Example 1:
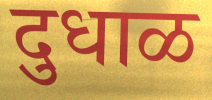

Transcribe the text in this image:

दुधाळ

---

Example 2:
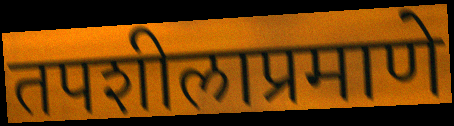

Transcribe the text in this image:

तपशीलाप्रमाणे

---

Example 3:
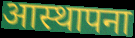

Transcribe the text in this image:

आस्थापना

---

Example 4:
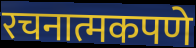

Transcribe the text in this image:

रचनात्मकपणे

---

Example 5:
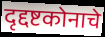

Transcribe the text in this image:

दृद्दष्टकोनाचे